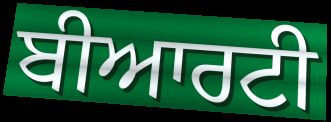
ਬੀਆਰਟੀ